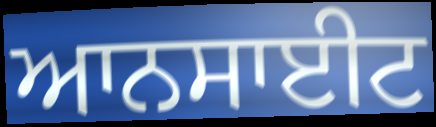
ਆਨਸਾਈਟ